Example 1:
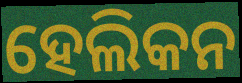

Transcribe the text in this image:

ହେଲିକନ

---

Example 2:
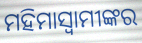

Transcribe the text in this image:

ମହିମାସ୍ୱାମୀଙ୍କର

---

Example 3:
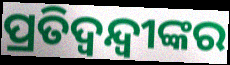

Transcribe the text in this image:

ପ୍ରତିଦ୍ୱନ୍ଦ୍ୱୀଙ୍କର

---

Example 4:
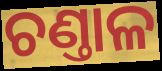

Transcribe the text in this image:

ଚଣ୍ତାଳ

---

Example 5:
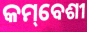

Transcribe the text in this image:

କମ୍‌ବେଶୀ